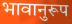
भावानुरूप